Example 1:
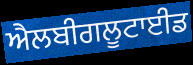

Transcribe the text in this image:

ਐਲਬੀਗਲੂਟਾਈਡ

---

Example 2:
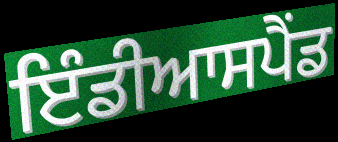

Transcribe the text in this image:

ਇੰਡੀਆਸਪੈਂਡ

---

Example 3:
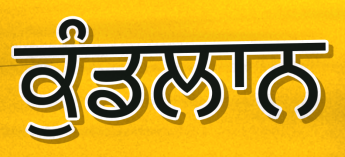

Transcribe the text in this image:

ਕੁੰਡਲਾਨ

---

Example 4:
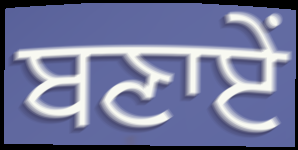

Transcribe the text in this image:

ਬਣਾਏਂ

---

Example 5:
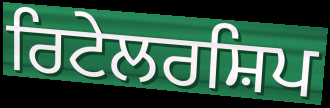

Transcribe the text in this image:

ਰਿਟੇਲਰਸ਼ਿਪ